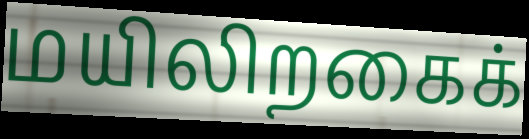
மயிலிறகைக்